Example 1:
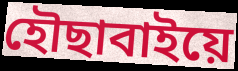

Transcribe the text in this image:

হৌছাবাইয়ে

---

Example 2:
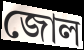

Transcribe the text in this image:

জোল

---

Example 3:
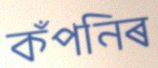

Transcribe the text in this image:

কঁপনিৰ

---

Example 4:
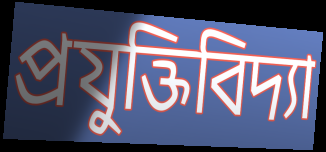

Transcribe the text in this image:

প্ৰযুক্তিবিদ্যা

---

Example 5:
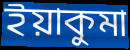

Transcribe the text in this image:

ইয়াকুমা